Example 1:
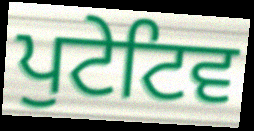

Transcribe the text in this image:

ਪੁਟੇਟਿਵ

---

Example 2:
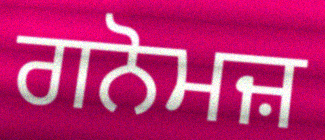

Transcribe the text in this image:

ਗਨੋਮਜ਼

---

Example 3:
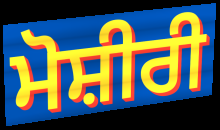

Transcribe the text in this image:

ਮੋਸ਼ੀਰੀ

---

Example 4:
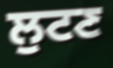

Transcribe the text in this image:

ਲੁਟਣ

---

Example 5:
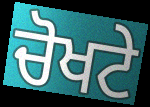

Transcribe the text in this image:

ਚੋਖਟੇ